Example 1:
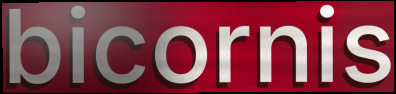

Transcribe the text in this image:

bicornis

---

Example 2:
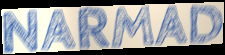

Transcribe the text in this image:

NARMAD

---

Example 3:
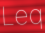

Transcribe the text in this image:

Leq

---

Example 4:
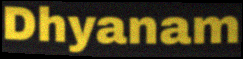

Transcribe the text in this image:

Dhyanam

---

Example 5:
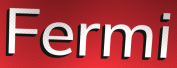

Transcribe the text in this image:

Fermi